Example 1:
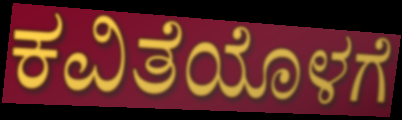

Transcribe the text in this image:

ಕವಿತೆಯೊಳಗೆ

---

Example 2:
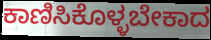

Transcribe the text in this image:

ಕಾಣಿಸಿಕೊಳ್ಳಬೇಕಾದ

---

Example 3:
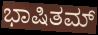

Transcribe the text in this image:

ಭಾಷಿತಮ್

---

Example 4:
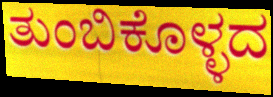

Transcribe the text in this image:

ತುಂಬಿಕೊಳ್ಳದ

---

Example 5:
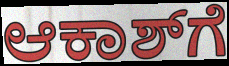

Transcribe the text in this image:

ಆಕಾಶ್‌ಗೆ